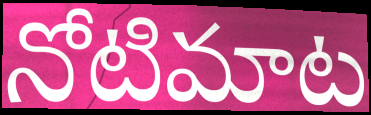
నోటిమాట